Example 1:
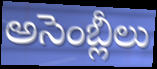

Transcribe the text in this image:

అసెంబ్లీలు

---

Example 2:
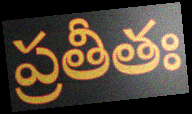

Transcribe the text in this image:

ప్రతీతః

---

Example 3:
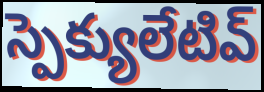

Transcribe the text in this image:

స్పెక్యులేటివ్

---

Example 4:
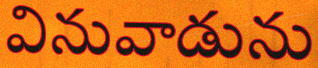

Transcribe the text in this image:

వినువాడును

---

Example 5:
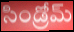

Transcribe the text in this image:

సిండ్రోమ్